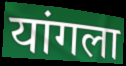
यांगला